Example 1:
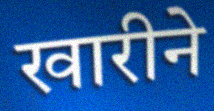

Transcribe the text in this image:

खारीने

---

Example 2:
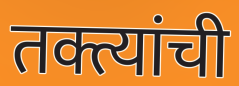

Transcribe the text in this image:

तक्त्यांची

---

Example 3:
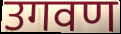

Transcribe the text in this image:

उगवण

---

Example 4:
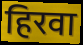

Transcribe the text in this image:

हिरवा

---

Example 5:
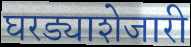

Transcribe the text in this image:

घरड्याशेजारी